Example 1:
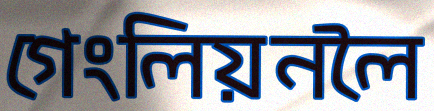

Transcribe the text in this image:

গেংলিয়নলৈ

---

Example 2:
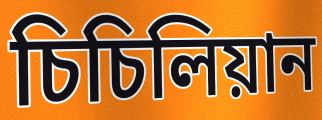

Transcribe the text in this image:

চিচিলিয়ান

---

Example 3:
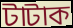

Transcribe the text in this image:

টাটাক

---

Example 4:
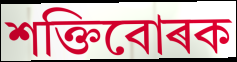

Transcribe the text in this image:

শক্তিবোৰক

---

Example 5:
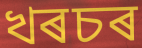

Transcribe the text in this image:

খৰচৰ